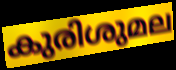
കുരിശുമല